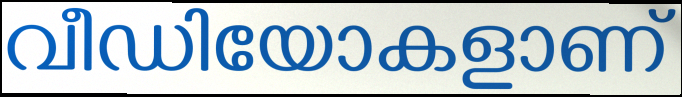
വീഡിയോകളാണ്